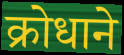
क्रोधाने